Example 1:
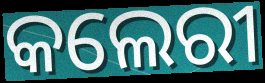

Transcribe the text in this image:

କଲେରୀ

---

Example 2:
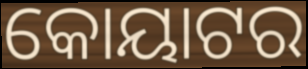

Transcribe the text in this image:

କୋୟାଟର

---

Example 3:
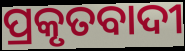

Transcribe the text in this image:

ପ୍ରକୃତବାଦୀ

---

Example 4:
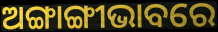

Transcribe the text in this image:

ଅଙ୍ଗାଙ୍ଗୀଭାବରେ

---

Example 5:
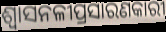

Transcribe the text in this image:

ଶ୍ୱାସନଳୀପ୍ରସାରଣକାରୀ